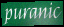
puranic